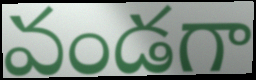
వండగా